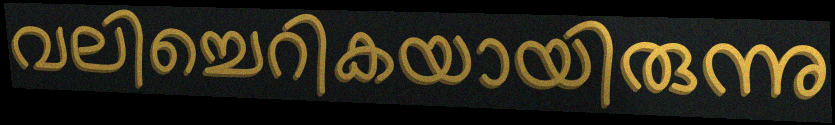
വലിച്ചെറികയായിരുന്നു